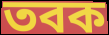
তবক